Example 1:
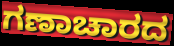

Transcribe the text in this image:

ಗಣಾಚಾರದ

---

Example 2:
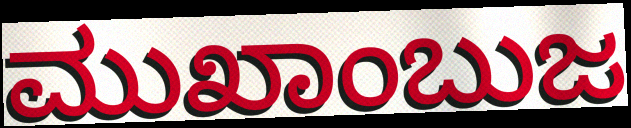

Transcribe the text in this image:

ಮುಖಾಂಬುಜ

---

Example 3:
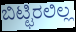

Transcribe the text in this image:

ಬಿಟ್ಟಿರಲಿಲ್ಲ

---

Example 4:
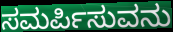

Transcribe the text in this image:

ಸಮರ್ಪಿಸುವನು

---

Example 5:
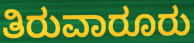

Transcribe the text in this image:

ತಿರುವಾರೂರು